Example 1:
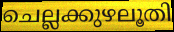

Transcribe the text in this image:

ചെല്ലക്കുഴലൂതി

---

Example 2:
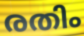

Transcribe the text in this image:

രതിം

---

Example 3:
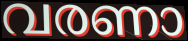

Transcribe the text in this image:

വരണാ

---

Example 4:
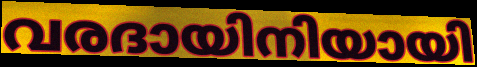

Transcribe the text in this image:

വരദായിനിയായി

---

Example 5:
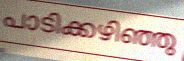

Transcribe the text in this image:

പാടിക്കഴിഞ്ഞു